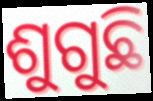
ଶୁଗୁଛି